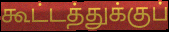
கூட்டத்துக்குப்